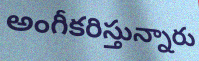
అంగీకరిస్తున్నారు